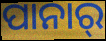
ପାନାର୍